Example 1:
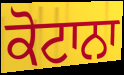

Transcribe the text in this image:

ਕੋਟਾਨਾ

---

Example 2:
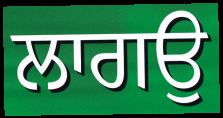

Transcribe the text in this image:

ਲਾਗਉ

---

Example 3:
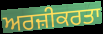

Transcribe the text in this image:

ਅਰਜ਼ੀਕਰਤਾ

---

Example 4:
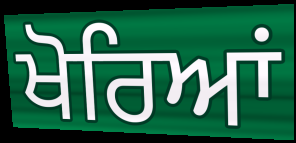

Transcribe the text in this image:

ਖੋਰਿਆਂ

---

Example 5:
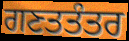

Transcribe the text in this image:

ਗਣਤਤੰਤਰ